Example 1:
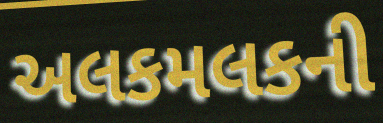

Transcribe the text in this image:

અલકમલકની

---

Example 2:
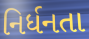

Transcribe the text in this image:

નિર્ધનતા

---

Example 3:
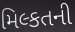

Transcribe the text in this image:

મિલ્કતની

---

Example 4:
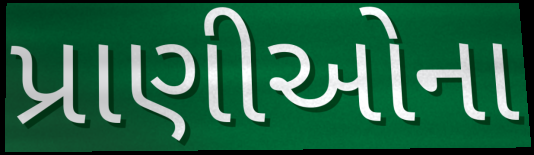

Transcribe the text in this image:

પ્રાણીઓના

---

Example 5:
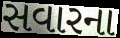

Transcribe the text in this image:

સવારના